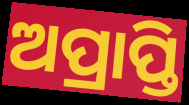
ଅପ୍ରାପ୍ତି